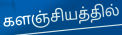
களஞ்சியத்தில்